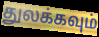
துலக்கவும்